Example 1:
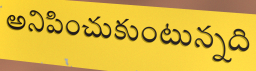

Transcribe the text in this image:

అనిపించుకుంటున్నది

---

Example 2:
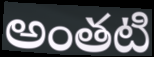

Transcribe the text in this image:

అంతటి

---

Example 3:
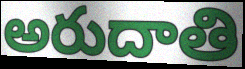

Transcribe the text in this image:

అరుదాతి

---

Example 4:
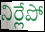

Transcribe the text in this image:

నిర్లేపో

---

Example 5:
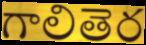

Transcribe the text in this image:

గాలితెర